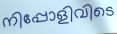
നിപ്പോളിവിടെ